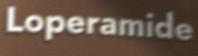
Loperamide